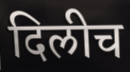
दिलीच